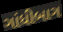
ગાંધીબાગ